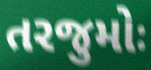
તરજુમોઃ